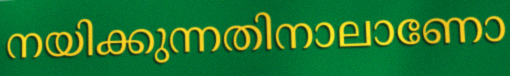
നയിക്കുന്നതിനാലാണോ